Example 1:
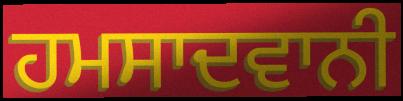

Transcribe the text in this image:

ਹਮਸਾਦਵਾਨੀ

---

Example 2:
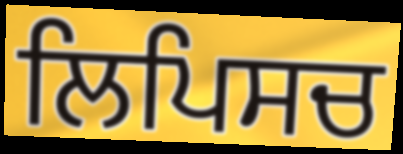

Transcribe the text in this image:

ਲਿਪਿਸਚ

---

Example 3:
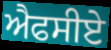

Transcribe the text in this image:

ਐਫਸੀਏ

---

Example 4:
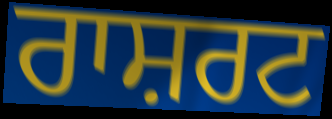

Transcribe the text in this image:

ਰਾਸ਼ਰਟ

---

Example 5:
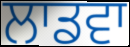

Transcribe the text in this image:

ਲਾਡਵਾ